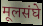
मूलसंघे